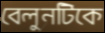
বেলুনটিকে